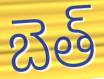
బెత్